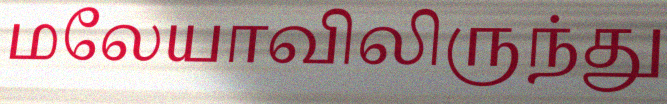
மலேயாவிலிருந்து